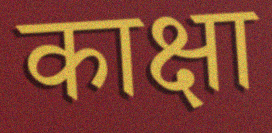
काक्षा